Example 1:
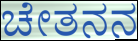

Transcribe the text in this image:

ಚೇತನನ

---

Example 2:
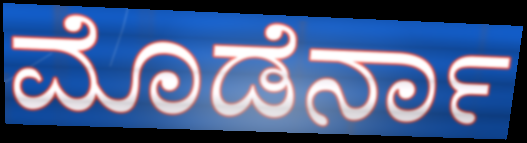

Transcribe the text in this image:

ಮೊಡೆರ್ನಾ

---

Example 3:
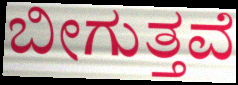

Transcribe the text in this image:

ಬೀಗುತ್ತವೆ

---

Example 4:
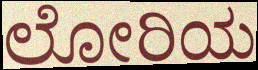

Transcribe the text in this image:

ಲೋರಿಯ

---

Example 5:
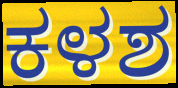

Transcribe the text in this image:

ಕಳಶ